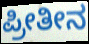
ಪ್ರೀತೀನ